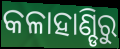
କଳାହାଣ୍ଡିରୁ